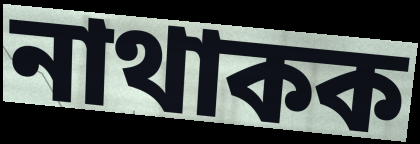
নাথাকক